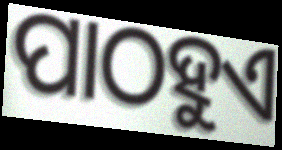
ପାଠହୁଏ